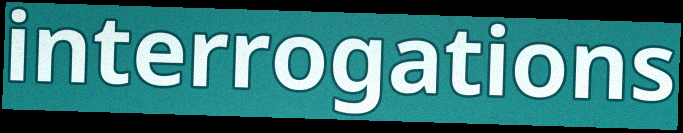
interrogations